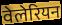
वेलेरियन